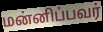
மன்னிப்பவர்